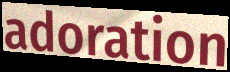
adoration